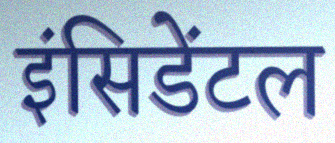
इंसिडेंटल